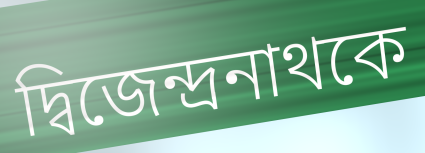
দ্বিজেন্দ্রনাথকে